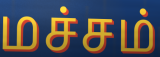
மச்சம்